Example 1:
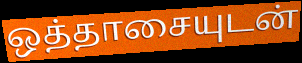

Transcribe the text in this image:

ஒத்தாசையுடன்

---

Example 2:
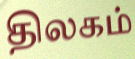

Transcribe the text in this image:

திலகம்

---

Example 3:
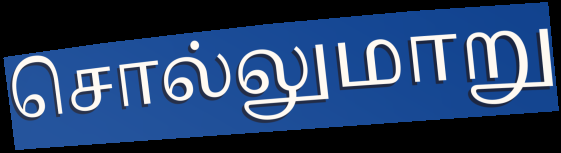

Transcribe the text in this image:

சொல்லுமாறு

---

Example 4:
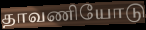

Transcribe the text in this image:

தாவணியோடு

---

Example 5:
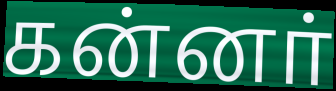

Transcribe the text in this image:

கன்னர்